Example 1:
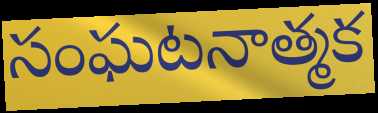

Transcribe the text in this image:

సంఘటనాత్మక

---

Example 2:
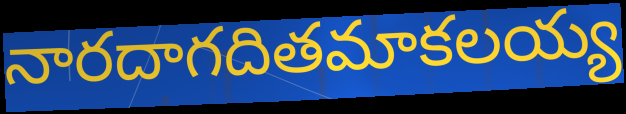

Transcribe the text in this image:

నారదాగదితమాకలయ్య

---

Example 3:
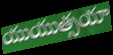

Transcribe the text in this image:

యుయుత్సయా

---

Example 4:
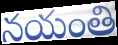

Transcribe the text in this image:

నయంతి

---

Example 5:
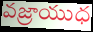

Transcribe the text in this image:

వజ్రాయుధ